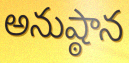
అనుష్ఠాన